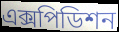
এক্সপিডিশন